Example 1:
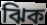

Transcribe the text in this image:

ঝিক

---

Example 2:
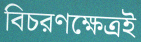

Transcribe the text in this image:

বিচরণক্ষেত্রই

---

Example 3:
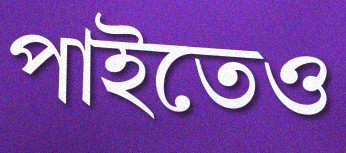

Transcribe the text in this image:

পাইতেও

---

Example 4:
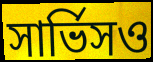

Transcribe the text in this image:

সার্ভিসও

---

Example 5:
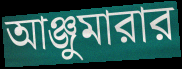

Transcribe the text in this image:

আঞ্জুমারার